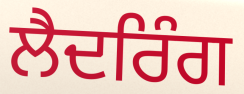
ਲੈਦਰਿੰਗ